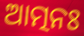
ଆତ୍ମନଃ